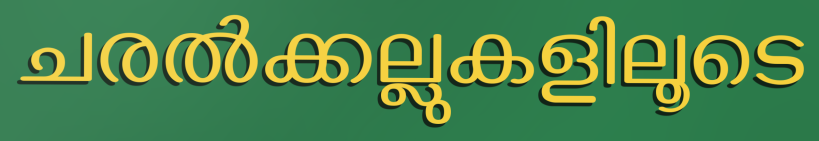
ചരൽക്കല്ലുകളിലൂടെ